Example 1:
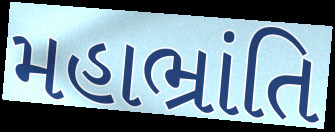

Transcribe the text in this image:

મહાભ્રાંતિ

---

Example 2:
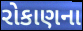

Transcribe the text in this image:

રોકાણના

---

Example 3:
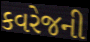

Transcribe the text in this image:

કવરેજની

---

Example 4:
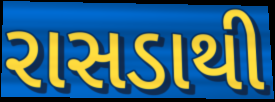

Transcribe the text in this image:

રાસડાથી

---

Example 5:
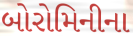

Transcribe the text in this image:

બોરોમિનીના